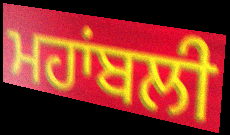
ਮਹਾਂਬਲੀ